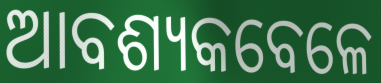
ଆବଶ୍ୟକବେଳେ